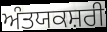
ਅੰਤਯਕਸ਼ਰੀ